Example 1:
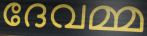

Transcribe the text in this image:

ദേവമ്മ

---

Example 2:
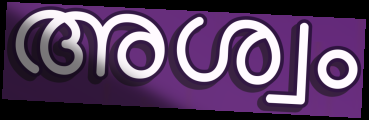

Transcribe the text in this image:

അശ്വം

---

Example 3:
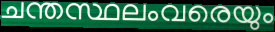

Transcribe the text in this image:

ചന്തസ്ഥലംവരെയും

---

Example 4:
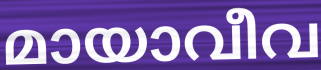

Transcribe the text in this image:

മായാവീവ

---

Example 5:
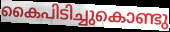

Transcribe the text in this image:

കൈപിടിച്ചുകൊണ്ടു